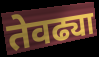
तेवढ्या